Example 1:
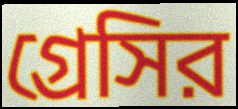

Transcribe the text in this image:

গ্রেসির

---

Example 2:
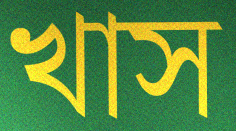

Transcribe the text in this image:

খাস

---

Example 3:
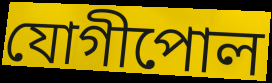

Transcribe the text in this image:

যোগীপোল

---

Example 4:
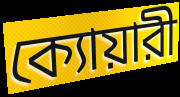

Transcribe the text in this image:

ক্যোয়ারী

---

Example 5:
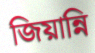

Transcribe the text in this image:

জিয়ান্নি